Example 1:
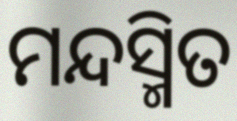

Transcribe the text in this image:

ମନ୍ଦସ୍ମିତ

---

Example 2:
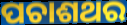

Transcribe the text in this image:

ପଚାଶଥର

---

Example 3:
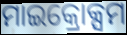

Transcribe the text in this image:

ମାଇକ୍ରୋକ୍ସମ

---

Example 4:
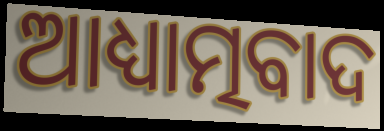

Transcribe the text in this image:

ଆଧ୍ୟାତ୍ମବାଦ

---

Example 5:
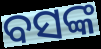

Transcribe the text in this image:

ବସଙ୍କ